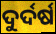
ଦୁର୍ଦର୍ଷ